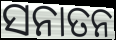
ସନାତନ